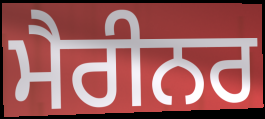
ਮੈਰੀਨਰ